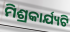
ମିଶ୍ରକାର୍ଯ୍ୟଟି